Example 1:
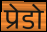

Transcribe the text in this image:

प्रेडो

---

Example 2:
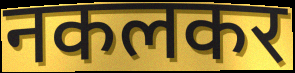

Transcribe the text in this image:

नकलकर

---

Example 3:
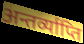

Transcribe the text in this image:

अन्तर्व्याप्ति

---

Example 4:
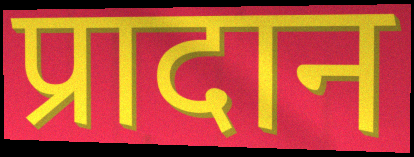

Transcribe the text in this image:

प्रादान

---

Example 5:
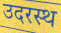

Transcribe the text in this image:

उदरस्थ